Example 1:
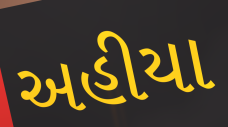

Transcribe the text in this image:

અહીયા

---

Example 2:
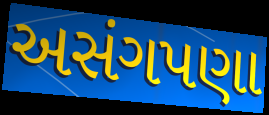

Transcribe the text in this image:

અસંગપણા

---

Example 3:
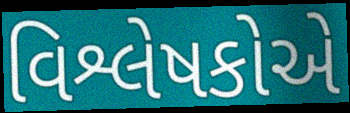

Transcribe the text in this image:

વિશ્લેષકોએ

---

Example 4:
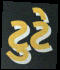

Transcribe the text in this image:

ટુટે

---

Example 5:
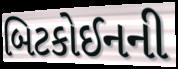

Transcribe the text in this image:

બિટકોઈનની